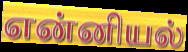
என்னியல்